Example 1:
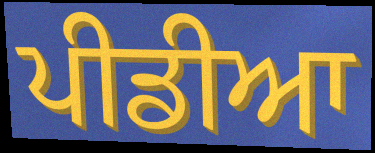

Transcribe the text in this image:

ਪੀਡੀਆ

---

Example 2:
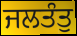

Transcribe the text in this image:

ਜਲਤੰਤੁ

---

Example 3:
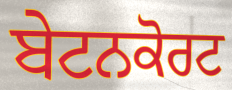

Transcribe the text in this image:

ਬੇਟਨਕੋਰਟ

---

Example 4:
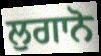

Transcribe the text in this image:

ਲੁਗਾਨੋ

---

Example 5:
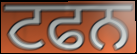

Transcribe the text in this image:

ਟਫਨ